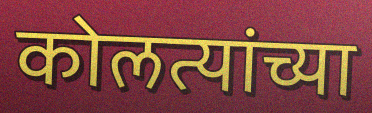
कोलत्यांच्या